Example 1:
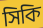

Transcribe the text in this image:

সিকি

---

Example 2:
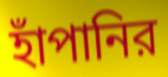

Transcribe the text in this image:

হাঁপানির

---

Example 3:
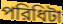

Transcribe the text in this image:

পরিধিটা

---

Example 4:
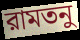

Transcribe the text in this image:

রামতনু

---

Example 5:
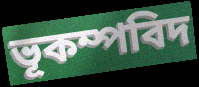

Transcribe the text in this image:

ভূকম্পবিদ